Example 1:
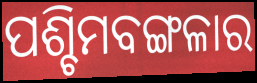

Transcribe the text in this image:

ପଶ୍ଚିମବଙ୍ଗଳାର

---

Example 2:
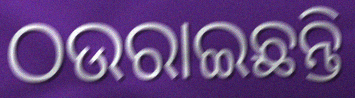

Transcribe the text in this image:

ଠଉରାଇଛନ୍ତି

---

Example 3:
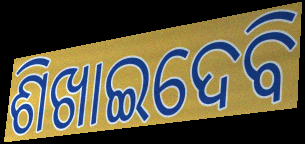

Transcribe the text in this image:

ଶିଖାଇଦେବି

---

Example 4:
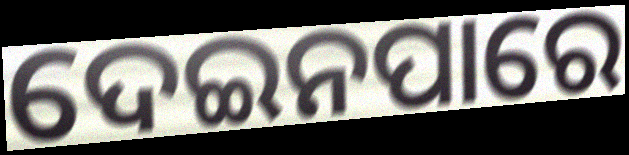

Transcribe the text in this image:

ଦେଇନପାରେ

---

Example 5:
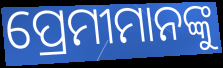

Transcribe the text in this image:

ପ୍ରେମୀମାନଙ୍କୁ